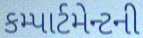
કમ્પાર્ટમેન્ટની